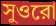
সুওরো